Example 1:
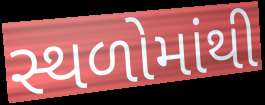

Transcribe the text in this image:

સ્થળોમાંથી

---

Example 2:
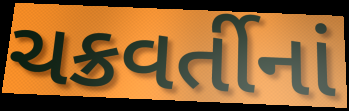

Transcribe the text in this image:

ચક્રવર્તીનાં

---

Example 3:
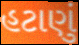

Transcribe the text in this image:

હટાણું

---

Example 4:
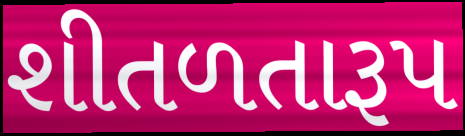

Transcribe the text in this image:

શીતળતારૂપ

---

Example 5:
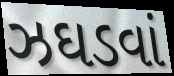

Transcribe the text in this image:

ઝઘડવાં